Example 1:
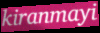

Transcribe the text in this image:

kiranmayi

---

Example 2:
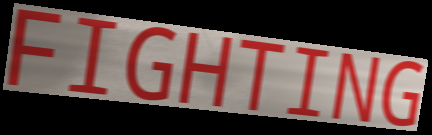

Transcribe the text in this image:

FIGHTING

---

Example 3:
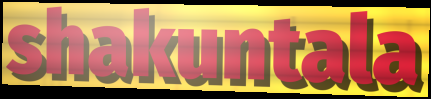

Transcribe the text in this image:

shakuntala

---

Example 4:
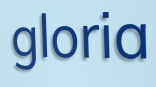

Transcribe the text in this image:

gloria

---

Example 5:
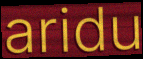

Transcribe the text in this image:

aridu